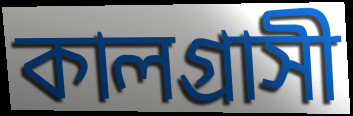
কালগ্রাসী